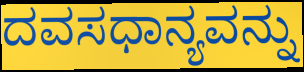
ದವಸಧಾನ್ಯವನ್ನು